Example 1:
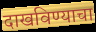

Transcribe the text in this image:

दाखविण्याचा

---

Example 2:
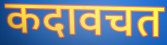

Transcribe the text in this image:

कदावचत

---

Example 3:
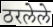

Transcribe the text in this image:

ठरलेले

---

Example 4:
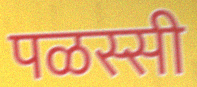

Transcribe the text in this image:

पळस्सी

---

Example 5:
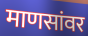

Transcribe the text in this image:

माणसांवर